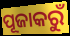
ପୂଜାକରୁଁ